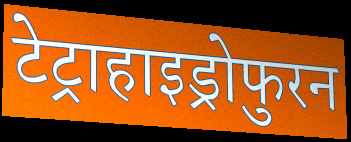
टेट्राहाइड्रोफुरन